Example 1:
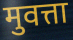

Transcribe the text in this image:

मुवत्ता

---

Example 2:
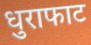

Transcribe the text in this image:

धुराफाट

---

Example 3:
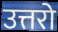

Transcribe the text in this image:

उत्तरो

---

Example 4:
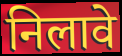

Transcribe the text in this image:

निलावे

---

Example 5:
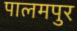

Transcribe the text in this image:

पालमपुर